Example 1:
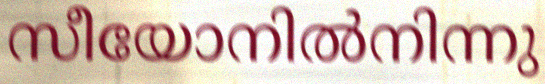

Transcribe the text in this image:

സീയോനിൽനിന്നു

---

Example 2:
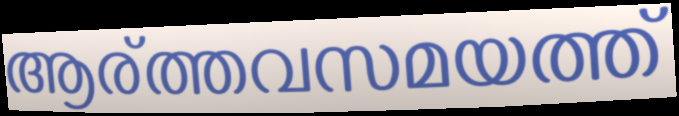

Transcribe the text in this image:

ആര്ത്തവസമയത്ത്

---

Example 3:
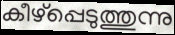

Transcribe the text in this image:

കീഴ്പ്പെടുത്തുന്നു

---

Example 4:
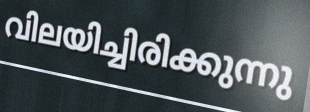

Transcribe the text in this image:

വിലയിച്ചിരിക്കുന്നു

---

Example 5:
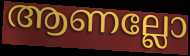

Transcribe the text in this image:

ആണല്ലോ